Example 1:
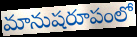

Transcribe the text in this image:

మానుషరూపంలో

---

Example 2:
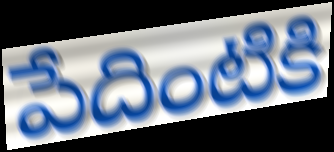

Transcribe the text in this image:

పేదింటికి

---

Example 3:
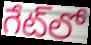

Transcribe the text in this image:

గేట్‌లో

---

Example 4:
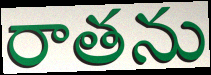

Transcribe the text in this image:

రాతను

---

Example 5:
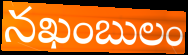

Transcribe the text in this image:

నఖంబులం